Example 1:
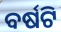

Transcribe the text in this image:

ବର୍ଷଟି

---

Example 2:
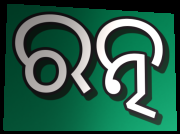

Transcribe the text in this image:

ରତ୍ନ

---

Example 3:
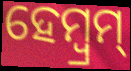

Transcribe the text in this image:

ହେମ୍ବ୍ରମ୍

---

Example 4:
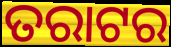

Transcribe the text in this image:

ତରାଟର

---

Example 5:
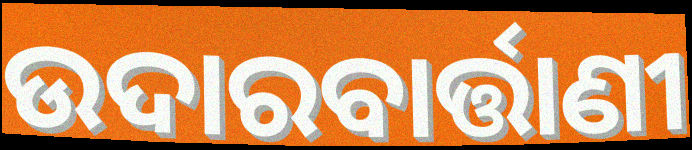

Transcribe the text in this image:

ଉଦାରବାର୍ତ୍ତାଣୀ